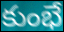
కుంభే